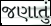
જણાતું